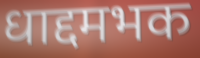
धाद्दमभक